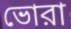
ভোরা